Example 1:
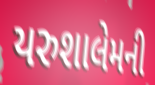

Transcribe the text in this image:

યરુશાલેમની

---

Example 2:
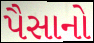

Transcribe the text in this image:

પૈસાનો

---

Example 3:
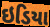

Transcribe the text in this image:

ઇડિયા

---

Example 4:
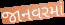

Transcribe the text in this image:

જાનવરમાં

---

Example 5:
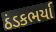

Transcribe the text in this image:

ઠંડકભર્યા